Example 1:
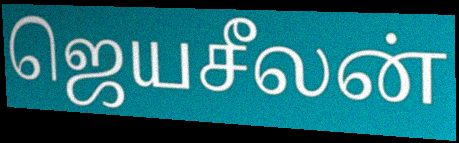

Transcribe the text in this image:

ஜெயசீலன்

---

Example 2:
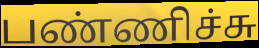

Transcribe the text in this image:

பண்ணிச்சு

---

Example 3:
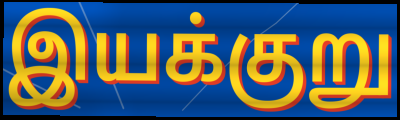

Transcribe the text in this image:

இயக்குறு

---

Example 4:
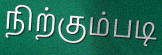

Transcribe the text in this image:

நிற்கும்படி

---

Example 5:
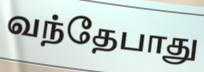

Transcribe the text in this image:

வந்தேபாது